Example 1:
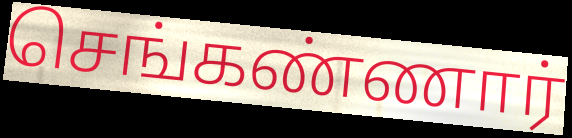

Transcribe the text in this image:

செங்கண்ணார்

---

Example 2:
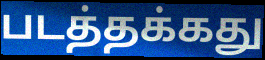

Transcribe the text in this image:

படத்தக்கது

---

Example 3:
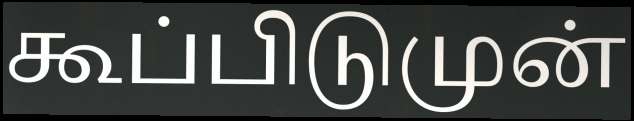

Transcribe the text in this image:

கூப்பிடுமுன்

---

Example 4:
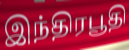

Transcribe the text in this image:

இந்திரபூதி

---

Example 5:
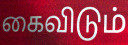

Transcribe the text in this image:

கைவிடும்